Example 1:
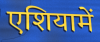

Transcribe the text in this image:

एशियामें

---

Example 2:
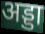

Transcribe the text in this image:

अड्डा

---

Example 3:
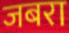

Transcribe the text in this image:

जबरा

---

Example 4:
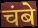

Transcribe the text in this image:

चंबे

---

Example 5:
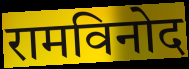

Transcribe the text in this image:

रामविनोद